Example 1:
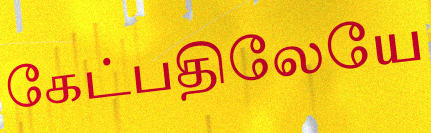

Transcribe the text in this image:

கேட்பதிலேயே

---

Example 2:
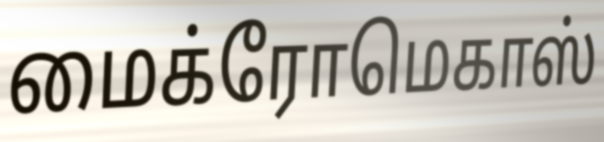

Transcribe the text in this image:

மைக்ரோமெகாஸ்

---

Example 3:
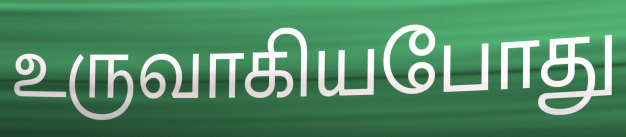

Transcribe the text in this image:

உருவாகியபோது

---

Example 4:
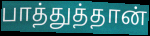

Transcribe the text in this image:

பாத்துத்தான்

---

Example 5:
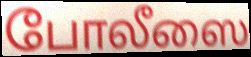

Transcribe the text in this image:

போலீஸை